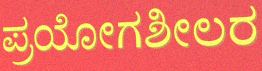
ಪ್ರಯೋಗಶೀಲರ